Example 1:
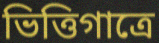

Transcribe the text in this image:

ভিত্তিগাত্রে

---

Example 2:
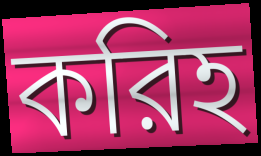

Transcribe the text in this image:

করিহ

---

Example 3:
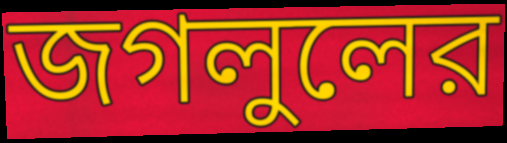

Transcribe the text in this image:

জগলুলের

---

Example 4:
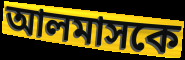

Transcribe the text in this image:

আলমাসকে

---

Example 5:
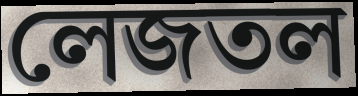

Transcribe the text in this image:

লেজতল